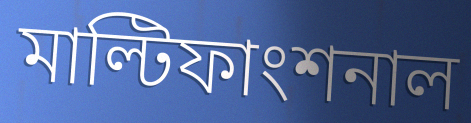
মাল্টিফাংশনাল